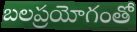
బలప్రయోగంతో